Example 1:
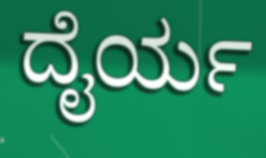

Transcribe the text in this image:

ದೈರ್ಯ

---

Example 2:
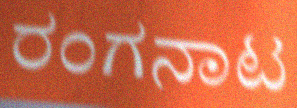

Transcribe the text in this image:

ರಂಗನಾಟ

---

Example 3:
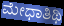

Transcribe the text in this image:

ಮೇಧಾತಿಥಿ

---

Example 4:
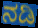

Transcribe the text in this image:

ನಡಿ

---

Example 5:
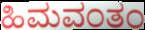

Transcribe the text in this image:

ಹಿಮವಂತಂ